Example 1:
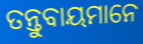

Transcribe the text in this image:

ତନ୍ତୁବାୟମାନେ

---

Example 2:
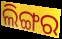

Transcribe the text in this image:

ଲିଙ୍ଗର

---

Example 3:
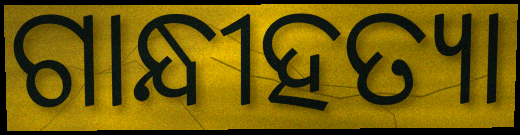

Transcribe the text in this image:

ଗାନ୍ଧୀହତ୍ୟା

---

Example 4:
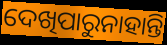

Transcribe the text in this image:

ଦେଖିପାରୁନାହାନ୍ତି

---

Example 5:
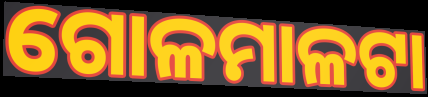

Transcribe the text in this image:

ଗୋଳମାଳଟା